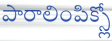
పారాలింపిక్స్లో